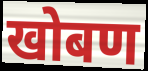
खोबण